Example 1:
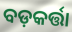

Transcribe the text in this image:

ବଡ଼କର୍ତ୍ତା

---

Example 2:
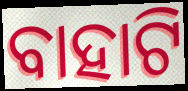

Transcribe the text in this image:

ବାହାଟି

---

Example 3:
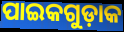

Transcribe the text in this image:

ପାଇକଗୁଡ଼ାକ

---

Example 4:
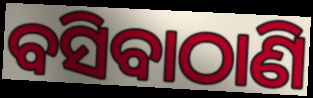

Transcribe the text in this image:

ବସିବାଠାଣି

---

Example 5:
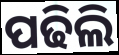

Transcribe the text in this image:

ପଢିଲି